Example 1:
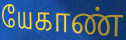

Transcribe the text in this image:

யேகாண்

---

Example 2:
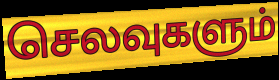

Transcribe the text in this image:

செலவுகளும்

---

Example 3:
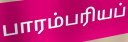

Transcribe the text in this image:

பாரம்பரியப்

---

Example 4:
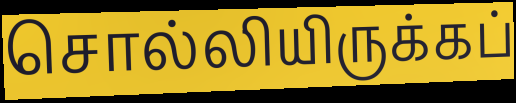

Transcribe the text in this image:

சொல்லியிருக்கப்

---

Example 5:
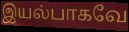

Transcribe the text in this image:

இயல்பாகவே